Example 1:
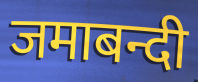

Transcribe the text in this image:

जमाबन्दी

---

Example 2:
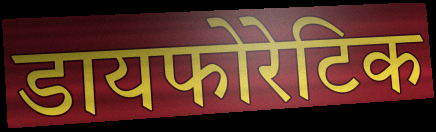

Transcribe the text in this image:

डायफोरेटिक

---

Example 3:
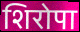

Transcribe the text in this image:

शिरोपा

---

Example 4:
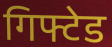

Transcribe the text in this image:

गिफ्टेड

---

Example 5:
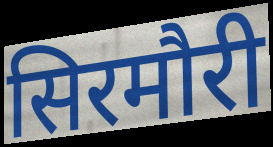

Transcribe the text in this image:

सिरमौरी